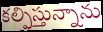
కల్పిస్తున్నాను